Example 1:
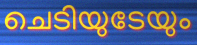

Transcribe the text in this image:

ചെടിയുടേയും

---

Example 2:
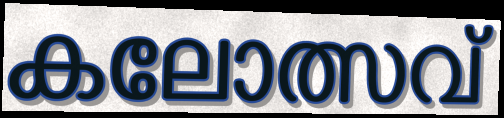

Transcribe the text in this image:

കലോത്സവ്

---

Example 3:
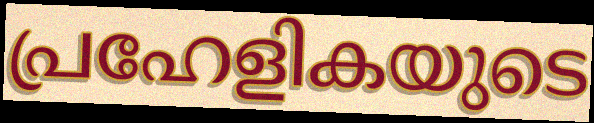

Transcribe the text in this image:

പ്രഹേളികയുടെ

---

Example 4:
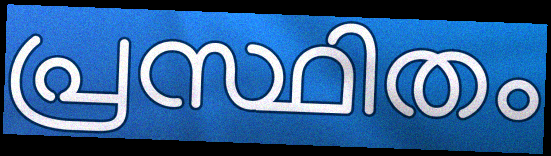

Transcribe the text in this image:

പ്രസ്ഥിതം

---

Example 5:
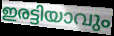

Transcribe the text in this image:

ഇരട്ടിയാവും